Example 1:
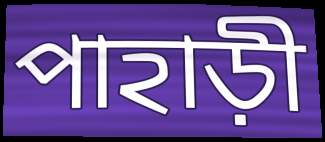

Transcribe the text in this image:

পাহাড়ী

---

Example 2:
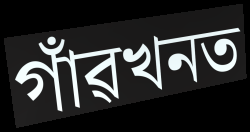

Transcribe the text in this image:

গাঁৱখনত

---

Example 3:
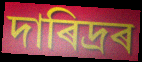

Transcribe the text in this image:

দাৰিদ্ৰৰ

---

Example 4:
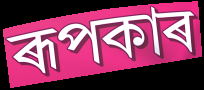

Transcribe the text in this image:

ৰূপকাৰ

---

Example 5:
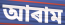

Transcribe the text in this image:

আৰাম